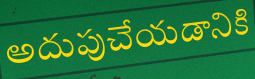
అదుపుచేయడానికి